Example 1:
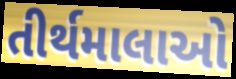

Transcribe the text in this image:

તીર્થમાલાઓ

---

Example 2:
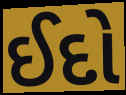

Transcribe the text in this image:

ઈદો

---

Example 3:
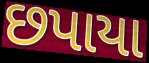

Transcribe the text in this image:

છપાયા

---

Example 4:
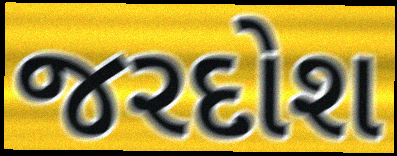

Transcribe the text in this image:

જરદોશ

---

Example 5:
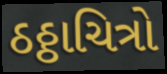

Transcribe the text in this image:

ઠઠ્ઠાચિત્રો